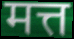
मत्त